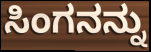
ಸಿಂಗನನ್ನು